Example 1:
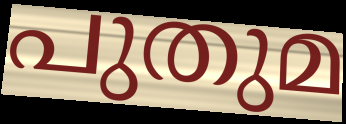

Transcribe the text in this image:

പുതുമ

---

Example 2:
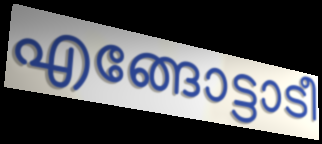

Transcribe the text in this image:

എങ്ങോട്ടാടീ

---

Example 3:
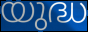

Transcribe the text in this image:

യുദ്ധ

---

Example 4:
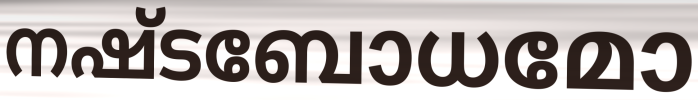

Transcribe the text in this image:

നഷ്ടബോധമോ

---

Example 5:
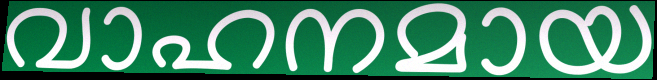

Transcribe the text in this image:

വാഹനമായ